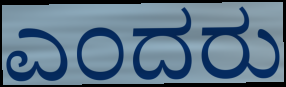
ಎಂದರು